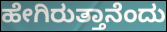
ಹೇಗಿರುತ್ತಾನೆಂದು